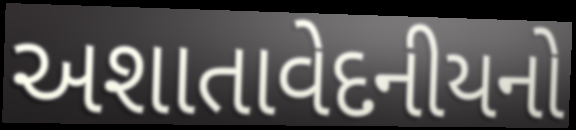
અશાતાવેદનીયનો